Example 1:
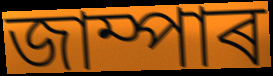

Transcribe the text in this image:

জাম্পাৰ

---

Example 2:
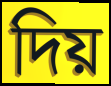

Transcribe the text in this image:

দিয়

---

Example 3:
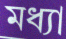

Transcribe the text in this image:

মধ্যা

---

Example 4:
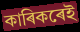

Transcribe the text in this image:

কাৰিকৰেই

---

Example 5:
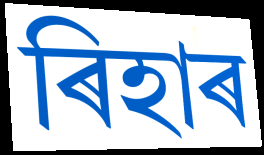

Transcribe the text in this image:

ৰিহাৰ